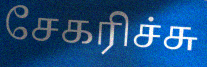
சேகரிச்சு